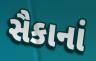
સૈકાનાં